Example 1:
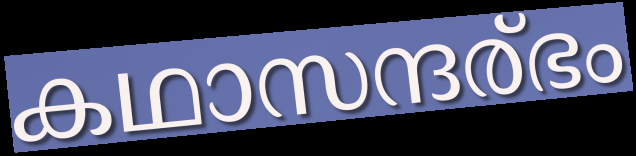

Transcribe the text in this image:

കഥാസന്ദര്ഭം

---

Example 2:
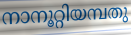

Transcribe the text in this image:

നാനൂറ്റിയമ്പതു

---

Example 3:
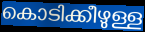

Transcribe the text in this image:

കൊടിക്കീഴുള്ള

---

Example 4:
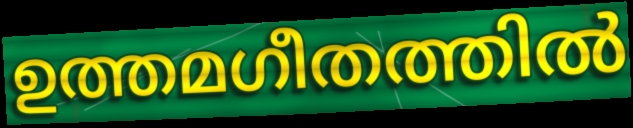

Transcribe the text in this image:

ഉത്തമഗീതത്തിൽ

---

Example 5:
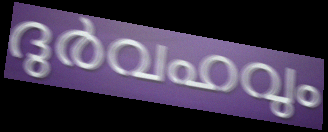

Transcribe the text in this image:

ദുർവഹവും